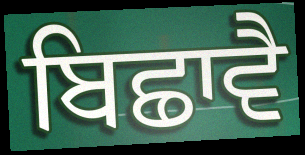
ਬਿਛਾਵੈ